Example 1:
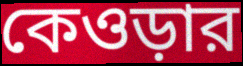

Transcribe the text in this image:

কেওড়ার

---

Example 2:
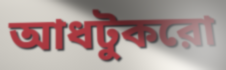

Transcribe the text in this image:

আধটুকরো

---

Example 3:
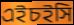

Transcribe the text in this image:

এইচইসি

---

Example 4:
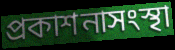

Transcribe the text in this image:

প্রকাশনাসংস্থা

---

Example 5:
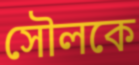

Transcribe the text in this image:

সৌলকে